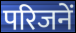
परिजनें